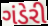
ગંડેરી